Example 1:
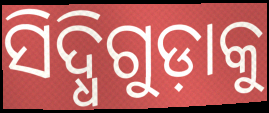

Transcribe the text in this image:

ସିଦ୍ଧିଗୁଡ଼ାକୁ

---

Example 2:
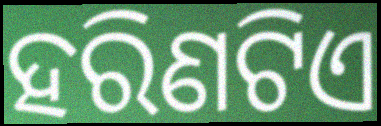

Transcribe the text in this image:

ହରିଣଟିଏ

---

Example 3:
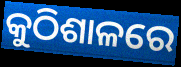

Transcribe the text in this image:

କୁଠିଶାଳରେ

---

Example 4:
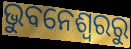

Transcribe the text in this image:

ଭୁବନେଶ୍ୱରରୁ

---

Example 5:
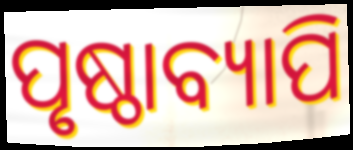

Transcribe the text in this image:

ପୃଷ୍ଠାବ୍ୟାପି